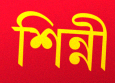
শিন্নী